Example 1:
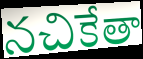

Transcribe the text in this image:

నచికేతా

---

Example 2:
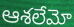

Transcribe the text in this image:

ఆశలేమో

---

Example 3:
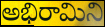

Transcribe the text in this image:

అభిరామిని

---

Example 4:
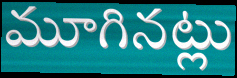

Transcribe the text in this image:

మూగినట్లు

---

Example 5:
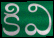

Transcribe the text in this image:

కివి